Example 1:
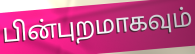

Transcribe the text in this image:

பின்புறமாகவும்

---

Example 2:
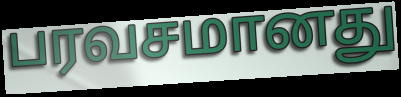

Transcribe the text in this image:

பரவசமானது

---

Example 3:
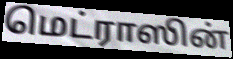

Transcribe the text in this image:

மெட்ராஸின்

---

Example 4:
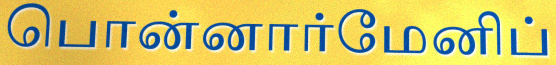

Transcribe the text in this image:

பொன்னார்மேனிப்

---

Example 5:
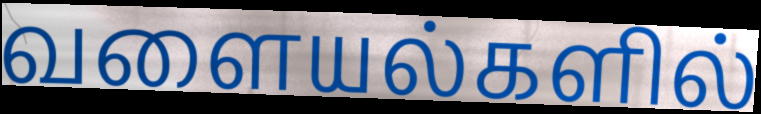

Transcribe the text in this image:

வளையல்களில்